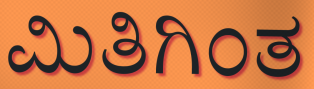
ಮಿತಿಗಿಂತ